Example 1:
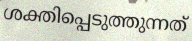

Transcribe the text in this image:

ശക്തിപ്പെടുത്തുന്നത്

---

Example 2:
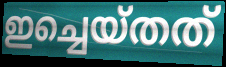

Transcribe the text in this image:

ഇച്ചെയ്തത്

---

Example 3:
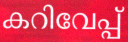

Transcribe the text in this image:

കറിവേപ്പ്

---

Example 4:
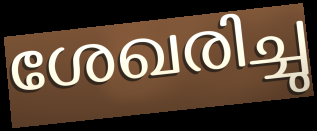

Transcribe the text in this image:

ശേഖരിച്ചു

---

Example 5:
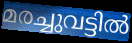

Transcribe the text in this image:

മരച്ചുവട്ടിൽ